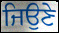
ਜਿਉਣੇ